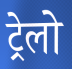
ट्रेलो